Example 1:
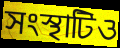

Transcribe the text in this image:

সংস্থাটিও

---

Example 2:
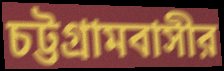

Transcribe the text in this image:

চট্টগ্রামবাসীর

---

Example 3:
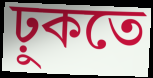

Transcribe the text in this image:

ঢ়ুকতে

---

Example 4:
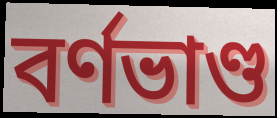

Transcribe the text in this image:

বর্ণভাণ্ড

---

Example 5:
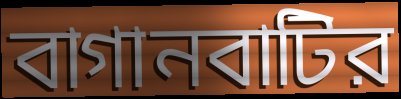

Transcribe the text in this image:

বাগানবাটির